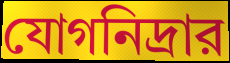
যোগনিদ্রার